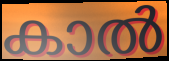
കാൽ